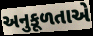
અનુકૂળતાએ